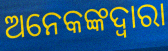
ଅନେକଙ୍କଦ୍ୱାରା